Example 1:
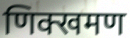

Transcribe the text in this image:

णिक्खमण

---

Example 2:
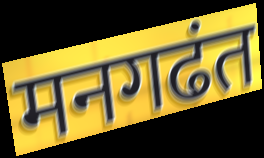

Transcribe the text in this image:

मनगढंत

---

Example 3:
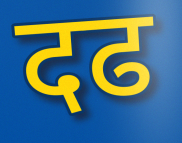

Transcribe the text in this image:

दढ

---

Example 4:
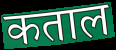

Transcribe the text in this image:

कताल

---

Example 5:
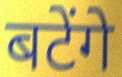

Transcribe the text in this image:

बटेंगे